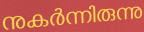
നുകർന്നിരുന്നു